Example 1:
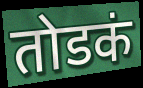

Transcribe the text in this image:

तोडकं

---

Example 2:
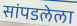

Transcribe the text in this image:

सांपडलेला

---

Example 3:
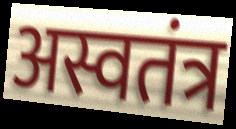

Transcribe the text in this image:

अस्वतंत्र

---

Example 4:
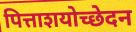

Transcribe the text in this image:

पित्ताशयोच्छेदन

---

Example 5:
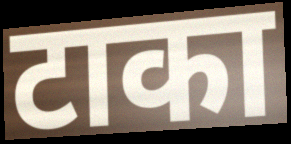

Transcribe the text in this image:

टाका